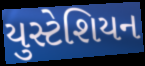
યુસ્ટેશિયન